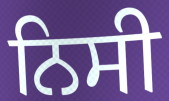
ਨਿਸੀ